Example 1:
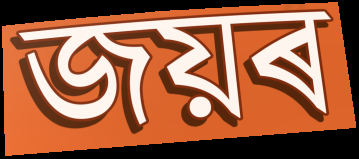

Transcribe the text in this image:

জয়ৰ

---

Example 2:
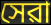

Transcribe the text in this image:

সেৱা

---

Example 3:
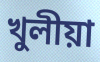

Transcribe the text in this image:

খুলীয়া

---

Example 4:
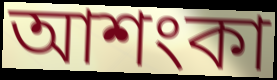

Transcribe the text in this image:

আশংকা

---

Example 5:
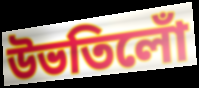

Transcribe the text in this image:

উভতিলোঁ